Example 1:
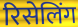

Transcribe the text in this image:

रिसेलिंग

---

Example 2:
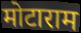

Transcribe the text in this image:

मोटाराम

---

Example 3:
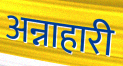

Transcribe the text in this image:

अन्नाहारी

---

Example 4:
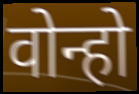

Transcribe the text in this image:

वोन्हो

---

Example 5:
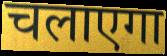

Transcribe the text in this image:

चलाएगा